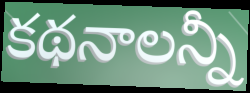
కథనాలన్నీ